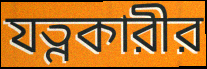
যত্নকারীর